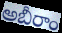
అబీరాం